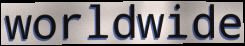
worldwide